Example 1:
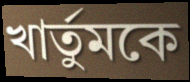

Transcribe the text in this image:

খার্তুমকে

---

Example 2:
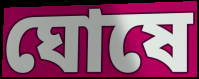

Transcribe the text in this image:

ঘোষে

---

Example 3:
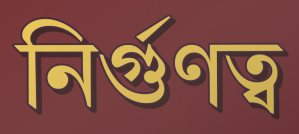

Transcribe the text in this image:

নির্গুণত্ব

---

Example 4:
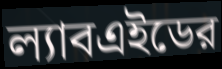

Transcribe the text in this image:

ল্যাবএইডের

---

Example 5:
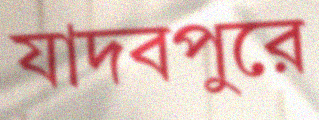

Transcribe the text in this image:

যাদবপুরে